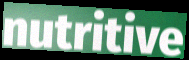
nutritive